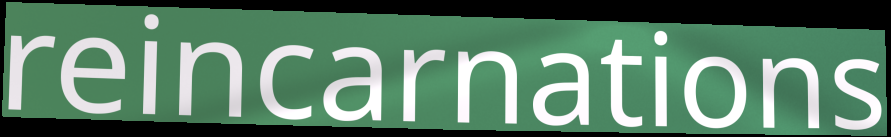
reincarnations